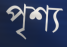
পৃশ্য